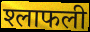
श्लाफली